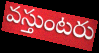
వస్తుంటరు